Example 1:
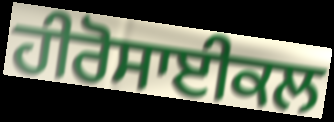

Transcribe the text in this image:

ਹੀਰੋਸਾਈਕਲ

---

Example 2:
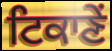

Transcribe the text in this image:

ਟਿਕਾਣੇਂ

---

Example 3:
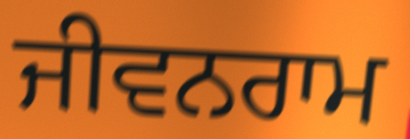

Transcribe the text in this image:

ਜੀਵਨਰਾਮ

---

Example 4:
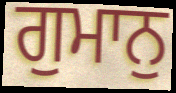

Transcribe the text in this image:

ਗੁਮਾਨੁ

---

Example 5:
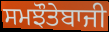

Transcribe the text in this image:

ਸਮਝੌਤੇਬਾਜੀ